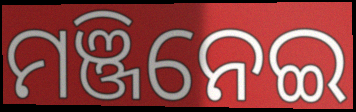
ମଞ୍ଜିନେଇ